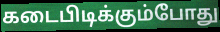
கடைபிடிக்கும்போது